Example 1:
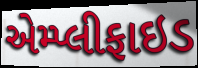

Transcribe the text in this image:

એમ્પ્લીફાઇડ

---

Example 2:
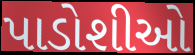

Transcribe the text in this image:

પાડોશીઓ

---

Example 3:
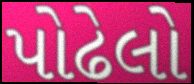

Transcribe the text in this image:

પોઢેલો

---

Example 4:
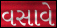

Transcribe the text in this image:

વસાવે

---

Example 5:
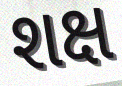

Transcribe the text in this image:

શક્ષ